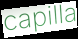
capilla